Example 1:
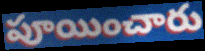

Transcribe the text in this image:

పూయించారు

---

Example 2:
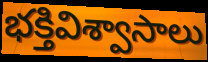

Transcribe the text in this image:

భక్తివిశ్వాసాలు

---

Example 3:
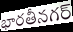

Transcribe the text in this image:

భారతీనగర్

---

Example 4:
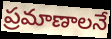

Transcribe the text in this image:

ప్రమాణాలనే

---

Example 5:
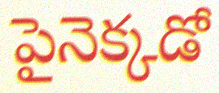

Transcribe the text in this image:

పైనెక్కడో